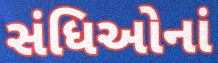
સંધિઓનાં